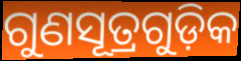
ଗୁଣସୂତ୍ରଗୁଡ଼ିକ